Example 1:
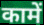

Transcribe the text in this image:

कामें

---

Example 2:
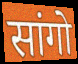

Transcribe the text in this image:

सांगो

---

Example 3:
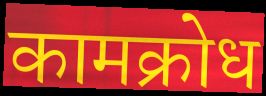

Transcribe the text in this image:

कामक्रोध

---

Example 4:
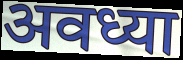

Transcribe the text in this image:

अवध्या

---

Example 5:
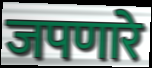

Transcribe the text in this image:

जपणारे